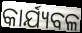
କାର୍ଯ୍ୟବଳ